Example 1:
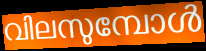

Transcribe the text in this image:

വിലസുമ്പോൾ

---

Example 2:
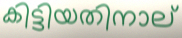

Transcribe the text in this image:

കിട്ടിയതിനാല്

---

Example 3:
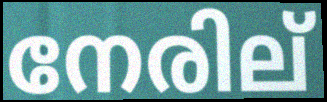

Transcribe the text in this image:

നേരില്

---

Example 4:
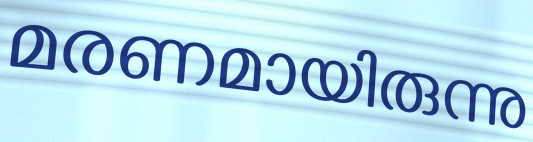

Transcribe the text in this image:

മരണമായിരുന്നു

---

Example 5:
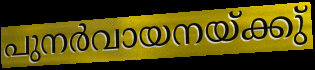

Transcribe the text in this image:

പുനർവായനയ്ക്കു്